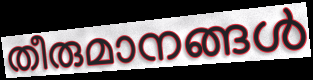
തീരുമാനങ്ങൾ